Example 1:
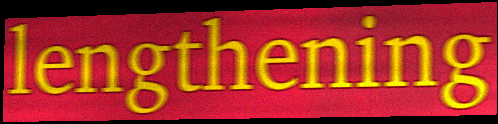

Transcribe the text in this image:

lengthening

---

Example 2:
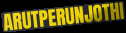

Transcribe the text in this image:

ARUTPERUNJOTHI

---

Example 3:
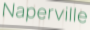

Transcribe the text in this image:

Naperville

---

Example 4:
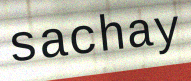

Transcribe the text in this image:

sachay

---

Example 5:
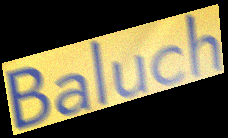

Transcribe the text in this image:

Baluch